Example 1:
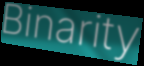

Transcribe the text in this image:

Binarity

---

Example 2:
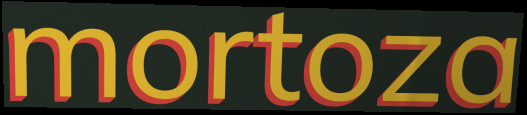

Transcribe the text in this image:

mortoza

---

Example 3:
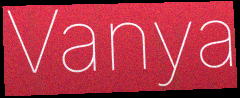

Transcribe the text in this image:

Vanya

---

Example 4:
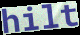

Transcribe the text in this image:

hilt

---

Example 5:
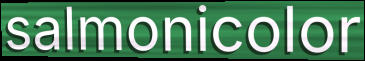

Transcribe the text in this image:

salmonicolor